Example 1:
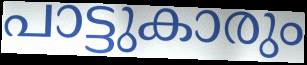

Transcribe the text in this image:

പാട്ടുകാരും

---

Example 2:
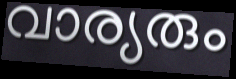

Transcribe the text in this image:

വാര്യരും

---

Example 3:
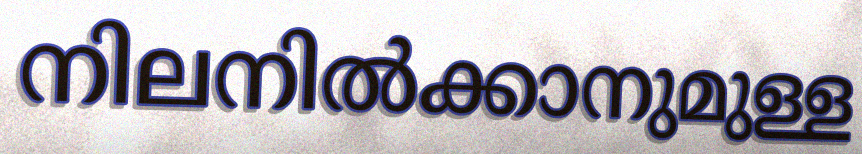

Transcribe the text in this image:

നിലനിൽക്കാനുമുള്ള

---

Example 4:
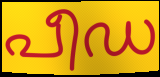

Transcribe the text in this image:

പീഡ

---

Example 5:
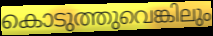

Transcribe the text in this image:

കൊടുത്തുവെങ്കിലും